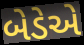
બેડેએ